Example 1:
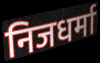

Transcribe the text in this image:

निजधर्मा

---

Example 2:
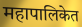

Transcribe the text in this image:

महापालिकेत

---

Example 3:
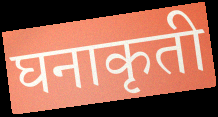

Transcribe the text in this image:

घनाकृती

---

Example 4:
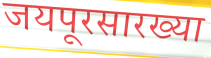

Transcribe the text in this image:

जयपूरसारख्या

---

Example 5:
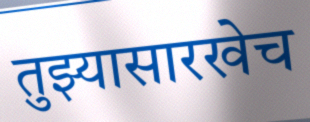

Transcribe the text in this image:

तुझ्यासारखेच